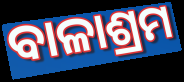
ବାଳାଶ୍ରମ